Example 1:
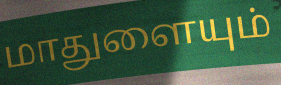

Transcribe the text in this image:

மாதுளையும்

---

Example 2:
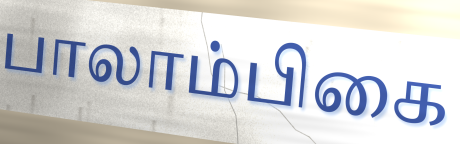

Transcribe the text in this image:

பாலாம்பிகை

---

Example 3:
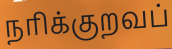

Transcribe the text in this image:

நரிக்குறவப்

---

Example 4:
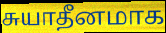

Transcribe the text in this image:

சுயாதீனமாக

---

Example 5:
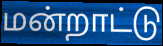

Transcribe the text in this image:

மன்றாட்டு